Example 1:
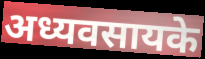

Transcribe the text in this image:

अध्यवसायके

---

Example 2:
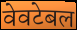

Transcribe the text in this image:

वेवटेबल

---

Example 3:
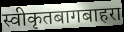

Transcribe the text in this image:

स्वीकृतबागबाहरा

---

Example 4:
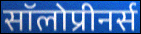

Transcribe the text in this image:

सॉलोप्रीनर्स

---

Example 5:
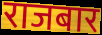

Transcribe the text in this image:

राजबार